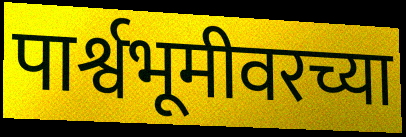
पार्श्वभूमीवरच्या